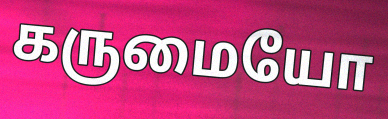
கருமையோ